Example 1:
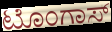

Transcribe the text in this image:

ಟೊಂಗಾಸ್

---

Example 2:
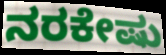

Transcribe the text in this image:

ನರಕೇಷು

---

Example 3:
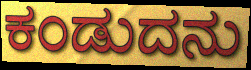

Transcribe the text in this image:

ಕಂಡುದನು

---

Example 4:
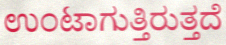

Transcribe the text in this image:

ಉಂಟಾಗುತ್ತಿರುತ್ತದೆ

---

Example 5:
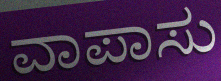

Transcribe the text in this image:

ವಾಪಾಸು